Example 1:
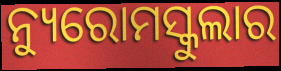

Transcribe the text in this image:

ନ୍ୟୁରୋମସ୍କୁଲାର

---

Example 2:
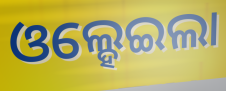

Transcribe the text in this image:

ଓଲ୍ହେଇଲା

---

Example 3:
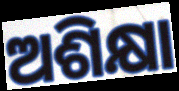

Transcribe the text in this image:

ଅଶିକ୍ଷା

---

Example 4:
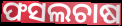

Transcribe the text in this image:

ଫସଲଚାଷ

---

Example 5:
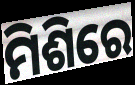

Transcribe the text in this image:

ମିଶିରେ